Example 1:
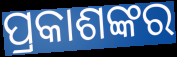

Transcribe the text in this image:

ପ୍ରକାଶଙ୍କର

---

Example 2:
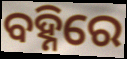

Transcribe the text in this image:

ବହ୍ନିରେ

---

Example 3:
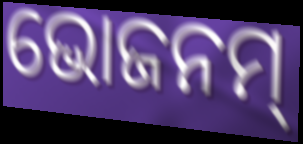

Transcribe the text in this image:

ଭୋଜନମ୍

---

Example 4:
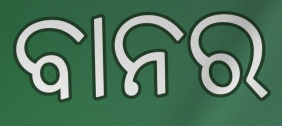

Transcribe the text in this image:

ବାନର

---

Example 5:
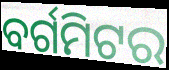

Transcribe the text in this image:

ବର୍ଗମିଟର